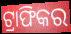
ଟ୍ରାଫିକର